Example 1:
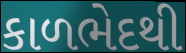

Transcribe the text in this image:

કાળભેદથી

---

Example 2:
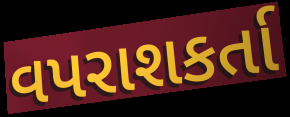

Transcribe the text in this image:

વપરાશકર્તા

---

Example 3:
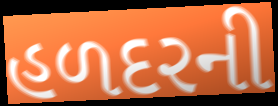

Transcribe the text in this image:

હળદરની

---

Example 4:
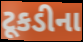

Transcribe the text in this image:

ટૂકડીના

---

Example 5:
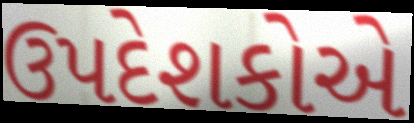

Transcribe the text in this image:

ઉપદેશકોએ